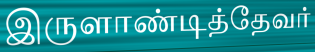
இருளாண்டித்தேவர்